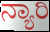
ನ್ಯಾರಿ